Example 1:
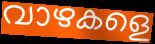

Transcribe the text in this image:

വാഴകളെ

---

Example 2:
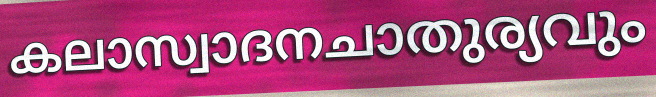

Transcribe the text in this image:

കലാസ്വാദനചാതുര്യവും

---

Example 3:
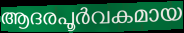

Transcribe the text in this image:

ആദരപൂർവകമായ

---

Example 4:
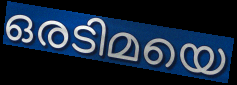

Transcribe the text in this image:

ഒരടിമയെ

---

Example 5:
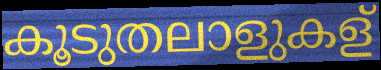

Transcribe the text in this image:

കൂടുതലാളുകള്